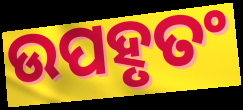
ଉପହୃତଂ